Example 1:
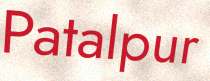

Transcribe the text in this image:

Patalpur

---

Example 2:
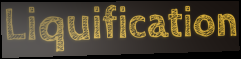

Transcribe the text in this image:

Liquification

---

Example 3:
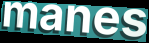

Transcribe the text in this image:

manes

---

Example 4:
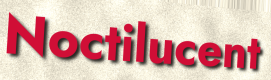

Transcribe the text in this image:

Noctilucent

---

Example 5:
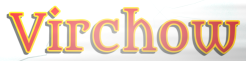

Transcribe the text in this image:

Virchow